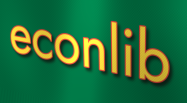
econlib